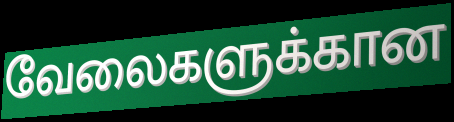
வேலைகளுக்கான